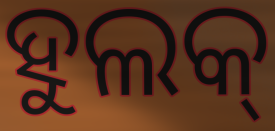
ହୁଲକ୍